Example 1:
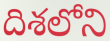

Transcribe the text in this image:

దిశలోని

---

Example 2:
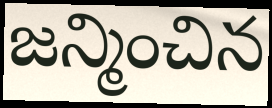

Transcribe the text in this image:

జన్మించిన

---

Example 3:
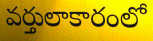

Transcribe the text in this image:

వర్తులాకారంలో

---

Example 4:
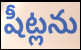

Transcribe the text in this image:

షీట్లను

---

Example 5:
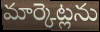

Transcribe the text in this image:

మార్కెట్లను